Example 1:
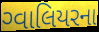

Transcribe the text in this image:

ગ્વાલિયરના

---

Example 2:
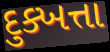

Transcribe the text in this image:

દુક્ખત્તા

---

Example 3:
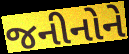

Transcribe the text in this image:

જનીનોને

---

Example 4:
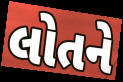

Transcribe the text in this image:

લોતને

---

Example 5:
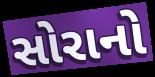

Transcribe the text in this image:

સોરાનો